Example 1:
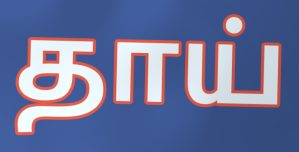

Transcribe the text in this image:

தாய்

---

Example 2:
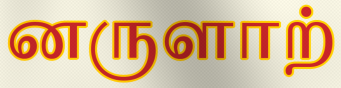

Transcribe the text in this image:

னருளாற்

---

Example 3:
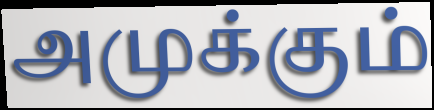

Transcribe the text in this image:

அமுக்கும்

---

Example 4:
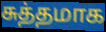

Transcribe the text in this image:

சுத்தமாக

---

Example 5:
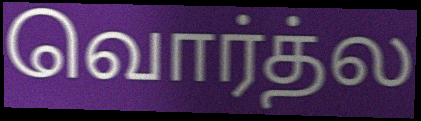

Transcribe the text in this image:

வொர்த்ல